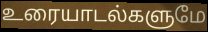
உரையாடல்களுமே